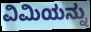
ವಿಮಿಯನ್ನು